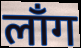
लाँग